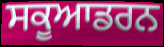
ਸਕੂਆਡਰਨ